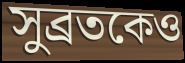
সুব্রতকেও